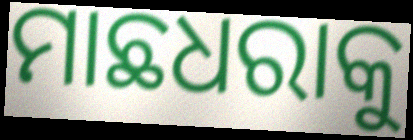
ମାଛଧରାକୁ